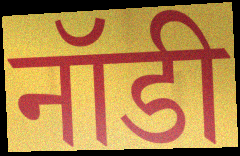
नॉडी